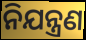
ନିଯନ୍ତ୍ରଣ